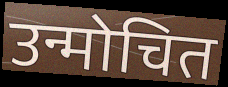
उन्मोचित